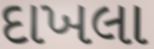
દાખલા